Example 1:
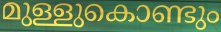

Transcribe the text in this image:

മുള്ളുകൊണ്ടും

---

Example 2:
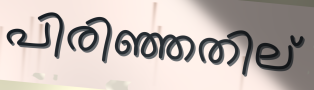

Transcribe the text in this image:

പിരിഞ്ഞതില്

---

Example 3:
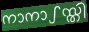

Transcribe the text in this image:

നാനാഽസ്തി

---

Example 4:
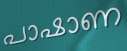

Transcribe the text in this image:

പാഷാണ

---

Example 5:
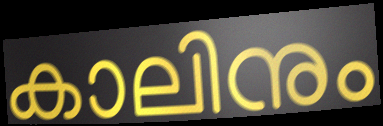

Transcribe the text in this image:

കാലിനും